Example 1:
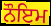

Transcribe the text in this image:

ਨੌਇਮ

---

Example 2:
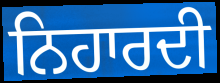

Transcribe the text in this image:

ਨਿਹਾਰਦੀ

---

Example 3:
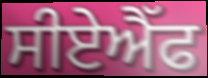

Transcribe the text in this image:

ਸੀਏਐੱਫ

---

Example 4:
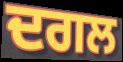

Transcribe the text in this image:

ਦਗਲ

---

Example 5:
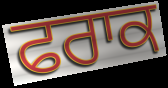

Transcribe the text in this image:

ਫਰਾਕ